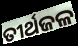
ତୀର୍ଥଜଳ